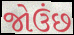
જોઉંછ